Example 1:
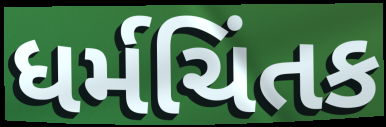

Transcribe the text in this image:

ધર્મચિંતક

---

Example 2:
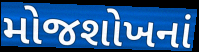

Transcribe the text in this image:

મોજશોખનાં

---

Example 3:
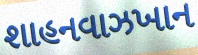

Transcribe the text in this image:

શાહનવાઝખાન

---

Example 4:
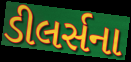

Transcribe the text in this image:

ડીલર્સના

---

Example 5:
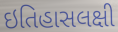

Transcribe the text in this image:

ઇતિહાસલક્ષી